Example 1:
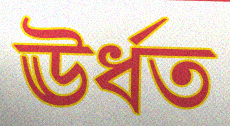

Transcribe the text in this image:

ঊৰ্ধত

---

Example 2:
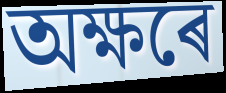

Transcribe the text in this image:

অক্ষৰে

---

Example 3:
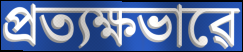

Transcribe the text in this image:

প্ৰত্যক্ষভাৱে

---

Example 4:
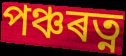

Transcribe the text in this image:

পঞ্চৰত্ন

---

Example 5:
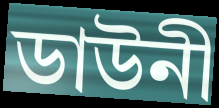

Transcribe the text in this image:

ডাউনী